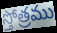
స్తోత్రము